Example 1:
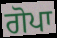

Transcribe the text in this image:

ਗੋਪਾ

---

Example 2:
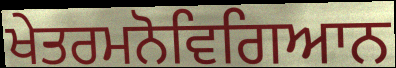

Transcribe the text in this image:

ਖੇਤਰਮਨੋਵਿਗਿਆਨ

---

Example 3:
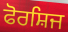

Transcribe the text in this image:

ਫੋਰਸ਼ਿਜ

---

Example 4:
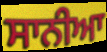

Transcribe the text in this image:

ਸਾਨੀਆ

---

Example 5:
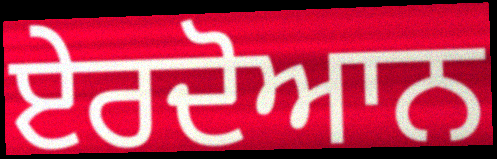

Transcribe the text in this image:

ਏਰਦੋਆਨ